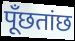
पूँछतांछ